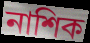
নাশিক